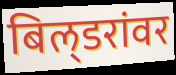
बिल्डरांवर